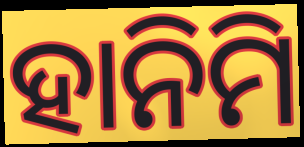
ହାନିମି